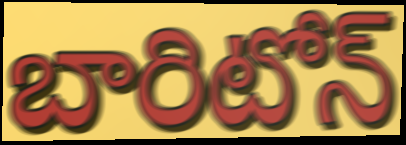
బారిటోన్